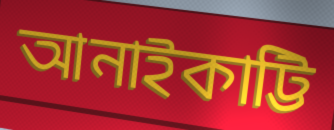
আনাইকাট্টি